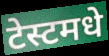
टेस्टमधे